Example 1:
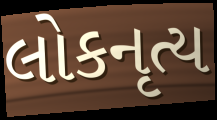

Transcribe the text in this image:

લોકનૃત્ય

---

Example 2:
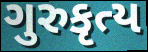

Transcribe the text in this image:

ગુરુકૃત્ય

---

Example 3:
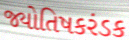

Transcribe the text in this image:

જ્યોતિષકરંડક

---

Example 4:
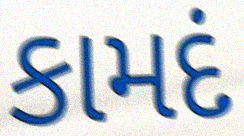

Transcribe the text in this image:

કામદં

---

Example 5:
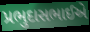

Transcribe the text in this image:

પ્રભુદાસભાઈએ